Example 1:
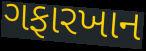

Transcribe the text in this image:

ગફારખાન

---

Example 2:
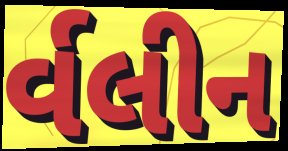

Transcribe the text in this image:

ર્વલીન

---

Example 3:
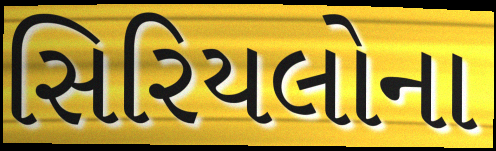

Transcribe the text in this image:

સિરિયલોના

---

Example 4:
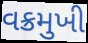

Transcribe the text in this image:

વક્રમુખી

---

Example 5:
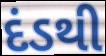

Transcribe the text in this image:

દંડથી